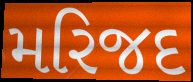
મરિજદ